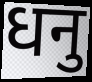
धनु